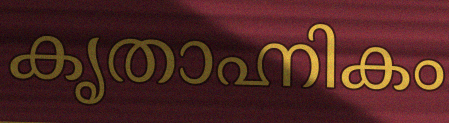
കൃതാഹ്നികം